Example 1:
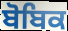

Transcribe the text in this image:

ਬੋਬਿਕ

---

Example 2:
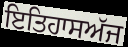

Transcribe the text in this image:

ਇਤਿਹਾਸਅੱਜ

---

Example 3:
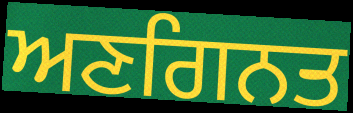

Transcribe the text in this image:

ਅਣਗਿਨਤ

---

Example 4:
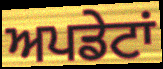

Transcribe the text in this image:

ਅਪਡੇਟਾਂ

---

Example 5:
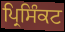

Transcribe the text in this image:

ਪ੍ਰਿਸਿੰਕਟ